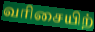
வரிசையிற்